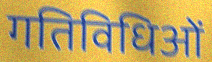
गतिविधिओं